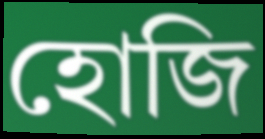
হোজি